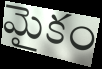
మైకం